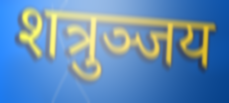
शत्रुञ्जय